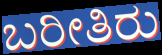
ಬರೀತಿರು